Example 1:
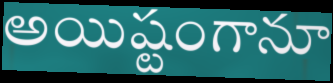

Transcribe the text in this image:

అయిష్టంగానూ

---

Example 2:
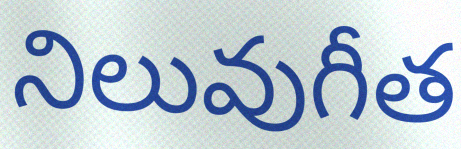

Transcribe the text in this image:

నిలువుగీత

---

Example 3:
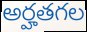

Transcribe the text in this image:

అర్హతగల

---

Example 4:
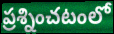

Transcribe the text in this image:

ప్రశ్నించటంలో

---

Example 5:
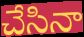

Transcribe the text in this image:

చేసినా